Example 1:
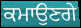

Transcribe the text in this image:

ਕਮਾਉਣਗੇ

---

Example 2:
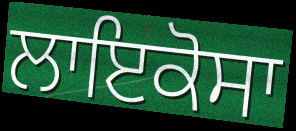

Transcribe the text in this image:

ਲਾਇਕੋਸਾ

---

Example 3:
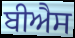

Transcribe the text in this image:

ਬੀਐਸ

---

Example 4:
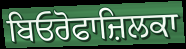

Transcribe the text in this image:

ਬਿਓਰੋਫਾਜ਼ਿਲਕਾ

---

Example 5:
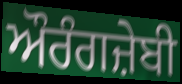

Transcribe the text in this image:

ਔਰੰਗਜ਼ੇਬੀ